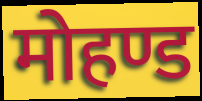
मोहण्ड